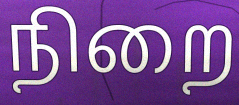
நிறை